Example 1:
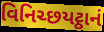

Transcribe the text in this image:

વિનિચ્છયટ્ઠાનં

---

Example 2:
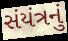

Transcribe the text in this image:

સંયંત્રનું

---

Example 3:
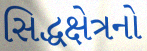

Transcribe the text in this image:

સિદ્ધક્ષેત્રનો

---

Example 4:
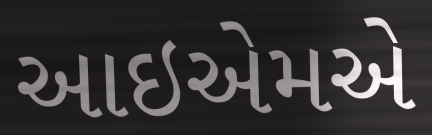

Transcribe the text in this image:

આઇએમએ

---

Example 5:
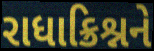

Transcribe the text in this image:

રાધાક્રિશ્નને